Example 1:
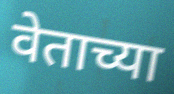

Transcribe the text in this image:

वेताच्या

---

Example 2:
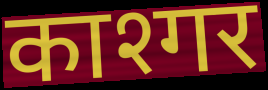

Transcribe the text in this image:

काश्गर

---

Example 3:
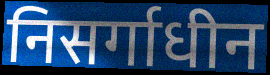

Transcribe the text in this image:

निसर्गाधीन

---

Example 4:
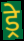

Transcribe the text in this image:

ड्रे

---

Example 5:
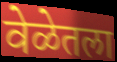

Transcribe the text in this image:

वेळेतला